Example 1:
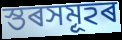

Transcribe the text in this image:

স্তৰসমূহৰ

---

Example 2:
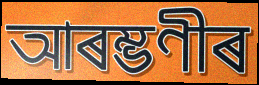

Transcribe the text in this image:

আৰম্ভণীৰ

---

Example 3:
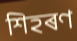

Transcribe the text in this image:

শিহৰণ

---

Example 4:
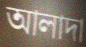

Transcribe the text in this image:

আলাদা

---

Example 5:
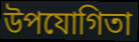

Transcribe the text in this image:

উপযোগিতা